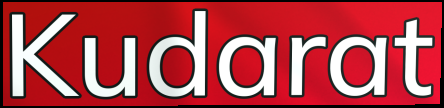
Kudarat